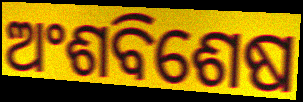
ଅଂଶବିଶେଷ